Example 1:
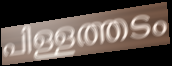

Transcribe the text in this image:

പിള്ളത്തടം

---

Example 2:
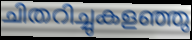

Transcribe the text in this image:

ചിതറിച്ചുകളഞ്ഞു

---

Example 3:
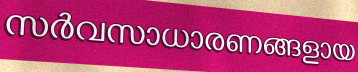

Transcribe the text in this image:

സർവസാധാരണങ്ങളായ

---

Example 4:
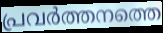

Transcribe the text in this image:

പ്രവർത്തനത്തെ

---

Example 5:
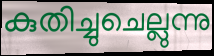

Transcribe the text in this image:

കുതിച്ചുചെല്ലുന്നു